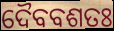
ଦୈବବଶତଃ